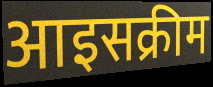
आइसक्रीम